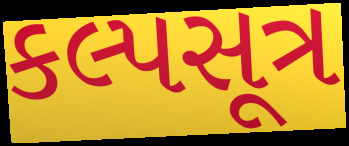
કલ્પસૂત્ર